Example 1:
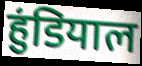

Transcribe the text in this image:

हुंडियाल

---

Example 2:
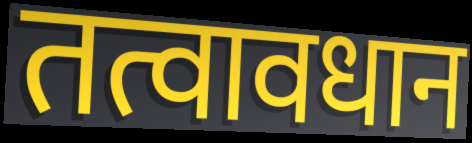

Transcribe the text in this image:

तत्वावधान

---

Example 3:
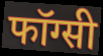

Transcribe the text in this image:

फॉग्सी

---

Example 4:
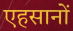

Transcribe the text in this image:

एहसानों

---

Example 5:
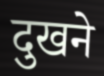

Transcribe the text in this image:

दुखने